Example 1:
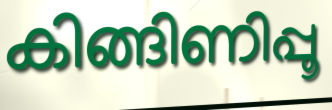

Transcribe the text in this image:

കിങ്ങിണിപ്പൂ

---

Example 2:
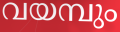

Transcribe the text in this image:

വയമ്പും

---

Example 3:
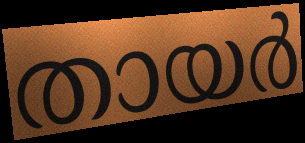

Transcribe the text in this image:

തായർ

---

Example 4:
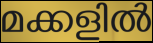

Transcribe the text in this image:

മക്കളിൽ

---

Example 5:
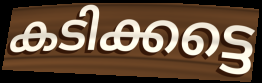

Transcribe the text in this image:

കടിക്കട്ടെ